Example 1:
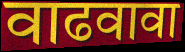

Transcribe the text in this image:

वाढवावा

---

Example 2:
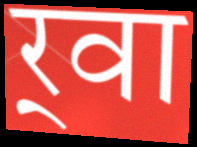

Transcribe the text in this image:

र्वा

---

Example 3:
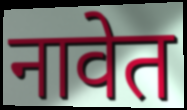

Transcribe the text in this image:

नावेत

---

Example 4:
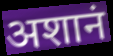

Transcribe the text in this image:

अशानं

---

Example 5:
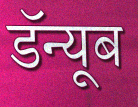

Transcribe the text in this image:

डॅन्यूब